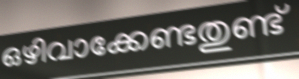
ഒഴിവാക്കേണ്ടതുണ്ട്